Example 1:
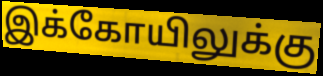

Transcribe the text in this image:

இக்கோயிலுக்கு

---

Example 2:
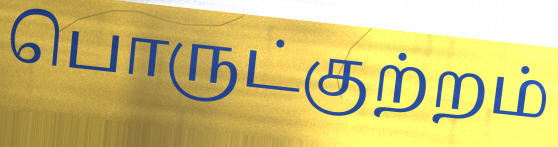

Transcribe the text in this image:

பொருட்குற்றம்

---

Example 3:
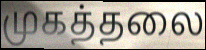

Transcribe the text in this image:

முகத்தலை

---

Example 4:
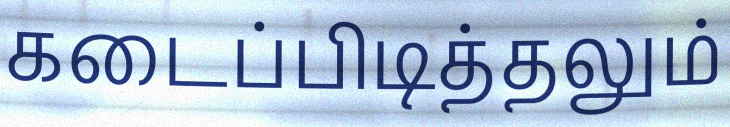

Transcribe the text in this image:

கடைப்பிடித்தலும்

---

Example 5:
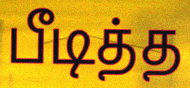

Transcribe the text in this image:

பீடித்த